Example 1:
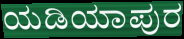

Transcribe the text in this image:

ಯಡಿಯಾಪುರ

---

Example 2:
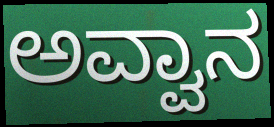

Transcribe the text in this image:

ಅವ್ವಾನ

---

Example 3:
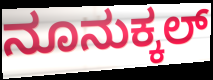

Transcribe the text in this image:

ನೂನುಕ್ಕಲ್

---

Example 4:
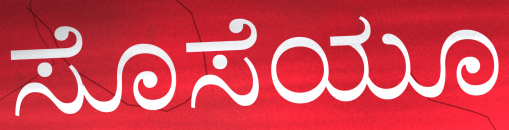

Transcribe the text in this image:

ಸೊಸೆಯೂ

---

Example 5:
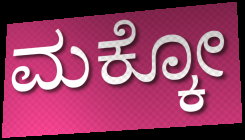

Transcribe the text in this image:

ಮಕ್ಕೋ